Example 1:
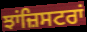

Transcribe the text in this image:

ਝਾਂਜ਼ਿਸਟਰਾਂ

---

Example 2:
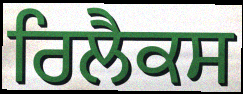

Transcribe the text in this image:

ਰਿਲੈਕਸ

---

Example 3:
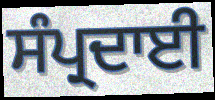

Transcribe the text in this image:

ਸੰਪ੍ਰਦਾਈ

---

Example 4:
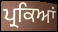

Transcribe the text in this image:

ਪ੍ਰਕਿਆਂ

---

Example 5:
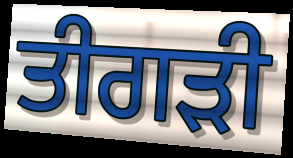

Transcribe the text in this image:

ਤੀਗੜੀ